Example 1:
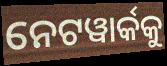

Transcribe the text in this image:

ନେଟୱାର୍କକୁ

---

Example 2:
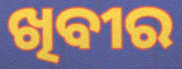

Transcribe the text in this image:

ଖିବୀର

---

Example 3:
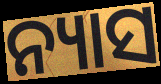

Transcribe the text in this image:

ନ୍ୟାସ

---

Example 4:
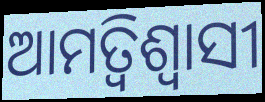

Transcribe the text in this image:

ଆମତ୍ବିଶ୍ୱାସୀ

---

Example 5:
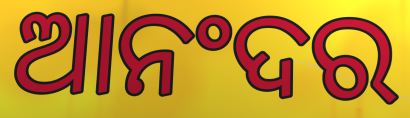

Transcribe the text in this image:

ଆନଂଦର